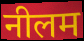
नीलम